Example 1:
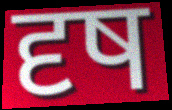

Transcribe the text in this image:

दृष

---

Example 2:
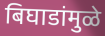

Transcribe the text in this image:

बिघाडांमुळे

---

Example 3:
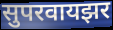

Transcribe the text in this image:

सुपरवायझर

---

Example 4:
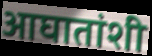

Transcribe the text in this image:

आघातांशी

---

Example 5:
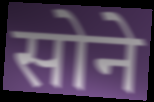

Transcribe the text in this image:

सोने